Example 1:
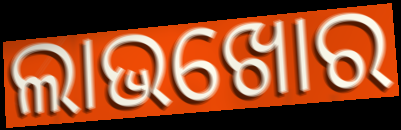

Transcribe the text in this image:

ଲାଭଖୋର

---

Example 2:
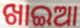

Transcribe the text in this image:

ଖାଇଆ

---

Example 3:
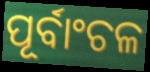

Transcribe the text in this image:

ପୂର୍ବାଂଚଳ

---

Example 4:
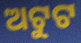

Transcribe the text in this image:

ଅଟୁଟ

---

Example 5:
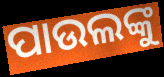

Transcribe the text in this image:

ପାଉଲଙ୍କୁ